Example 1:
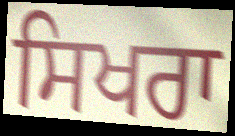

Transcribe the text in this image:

ਸਿਖਰਾ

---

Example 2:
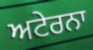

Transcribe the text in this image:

ਅਟੇਰਨਾ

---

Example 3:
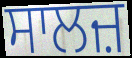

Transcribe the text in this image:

ਸਾਲਜ਼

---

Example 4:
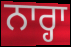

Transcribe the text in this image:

ਨਾਰ੍ਹਾ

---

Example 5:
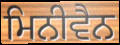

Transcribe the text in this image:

ਮਿਨੀਵੈਨ